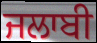
ਜਲਾਬੀ